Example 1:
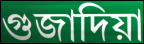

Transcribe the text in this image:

গুজাদিয়া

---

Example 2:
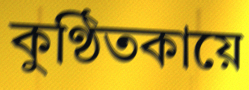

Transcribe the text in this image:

কুণ্ঠিতকায়ে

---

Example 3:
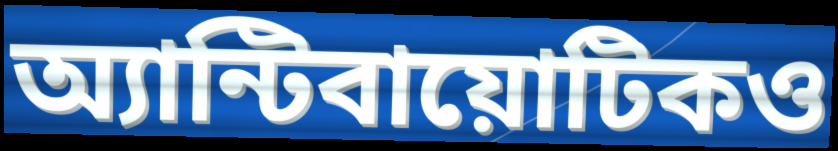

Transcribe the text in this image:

অ্যান্টিবায়োটিকও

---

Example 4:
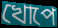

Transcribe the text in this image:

খোপে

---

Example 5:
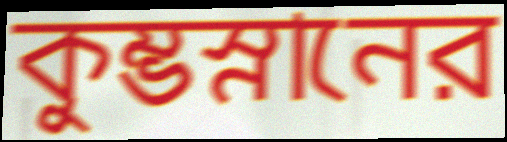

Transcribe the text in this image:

কুম্ভস্নানের